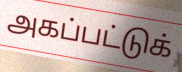
அகப்பட்டுக்